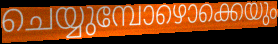
ചെയ്യുമ്പോഴൊക്കെയും